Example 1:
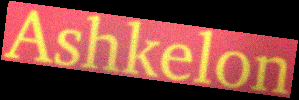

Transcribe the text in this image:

Ashkelon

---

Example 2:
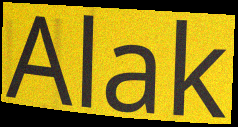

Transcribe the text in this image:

Alak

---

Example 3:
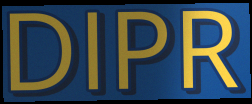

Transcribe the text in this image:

DIPR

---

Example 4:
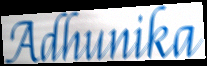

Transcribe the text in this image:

Adhunika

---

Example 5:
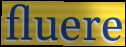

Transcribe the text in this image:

fluere